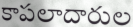
కాపలాదారుల